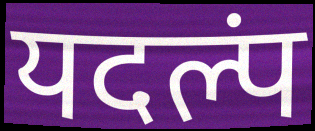
यदल्पं